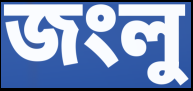
জংলু